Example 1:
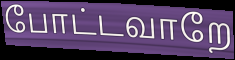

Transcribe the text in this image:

போட்டவாறே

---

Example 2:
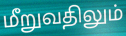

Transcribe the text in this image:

மீறுவதிலும்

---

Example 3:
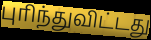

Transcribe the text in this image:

புரிந்துவிட்டது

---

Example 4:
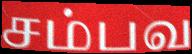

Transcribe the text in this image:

சம்பவ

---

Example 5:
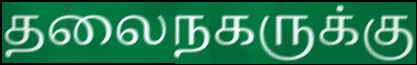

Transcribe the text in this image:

தலைநகருக்கு